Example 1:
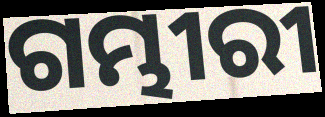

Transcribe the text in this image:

ଗମ୍ଭୀରୀ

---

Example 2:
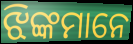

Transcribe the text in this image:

ଝିଙ୍କମାନେ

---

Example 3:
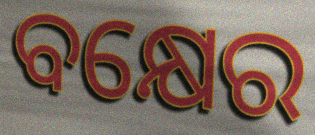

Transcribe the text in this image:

ବକ୍ଷେର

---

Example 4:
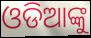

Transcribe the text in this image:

ଓଡିଆଙ୍କୁ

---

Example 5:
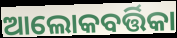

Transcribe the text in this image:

ଆଲୋକବର୍ତ୍ତିକା